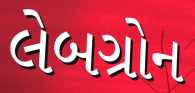
લેબગ્રોન